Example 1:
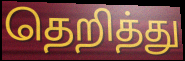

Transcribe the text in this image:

தெறித்து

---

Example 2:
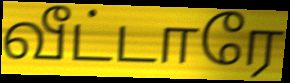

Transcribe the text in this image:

வீட்டாரே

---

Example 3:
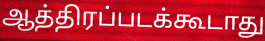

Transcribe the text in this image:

ஆத்திரப்படக்கூடாது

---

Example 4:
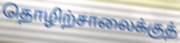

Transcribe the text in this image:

தொழிற்சாலைக்குத்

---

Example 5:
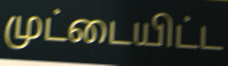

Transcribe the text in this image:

முட்டையிட்ட